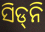
ସିଡ୍‍ନି